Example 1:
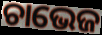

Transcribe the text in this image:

ଚାଭେଜ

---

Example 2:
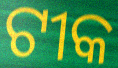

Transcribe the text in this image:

ଟୀକ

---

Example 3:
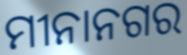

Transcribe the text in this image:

ମୀନାନଗର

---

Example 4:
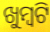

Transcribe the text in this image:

ଖୁମ୍ବଟି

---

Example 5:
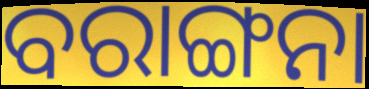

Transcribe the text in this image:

ବରାଙ୍ଗନା